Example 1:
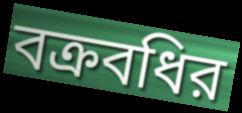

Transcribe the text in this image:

বক্রবধির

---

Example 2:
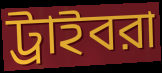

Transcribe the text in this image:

ট্রাইবরা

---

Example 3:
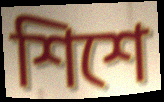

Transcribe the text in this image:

শিশে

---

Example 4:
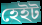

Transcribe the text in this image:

হেইট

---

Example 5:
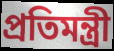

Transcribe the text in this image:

প্রতিমন্ত্রী